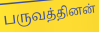
பருவத்தினன்